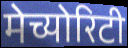
मेच्योरिटी